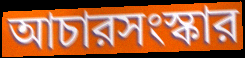
আচারসংস্কার